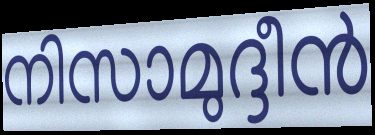
നിസാമുദ്ദീൻ